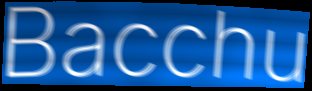
Bacchu